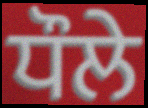
ਧੌਲੇ